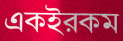
একইরকম